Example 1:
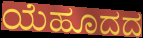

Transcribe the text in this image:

ಯೆಹೂದದ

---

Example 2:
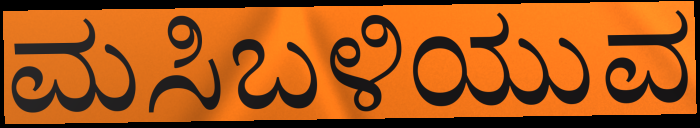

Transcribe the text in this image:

ಮಸಿಬಳಿಯುವ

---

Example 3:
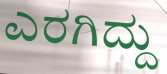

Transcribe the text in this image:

ಎರಗಿದ್ದು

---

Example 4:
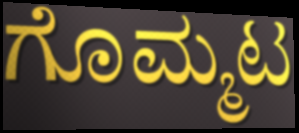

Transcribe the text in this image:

ಗೊಮ್ಮಟ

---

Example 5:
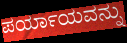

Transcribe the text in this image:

ಪರ್ಯಾಯವನ್ನು